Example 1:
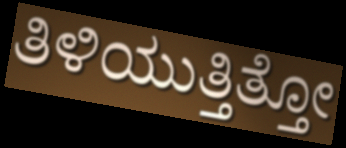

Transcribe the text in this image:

ತಿಳಿಯುತ್ತಿತ್ತೋ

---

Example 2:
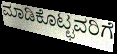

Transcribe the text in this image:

ಮಾಡಿಕೊಟ್ಟವರಿಗೆ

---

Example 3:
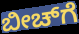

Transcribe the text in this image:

ಬೀಚ್‌ಗೆ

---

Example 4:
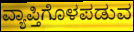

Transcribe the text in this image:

ವ್ಯಾಪ್ತಿಗೊಳಪಡುವ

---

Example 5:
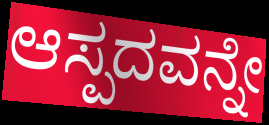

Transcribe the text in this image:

ಆಸ್ಪದವನ್ನೇ